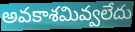
అవకాశమివ్వలేదు